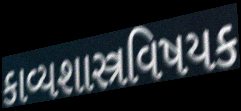
કાવ્યશાસ્ત્રવિષયક